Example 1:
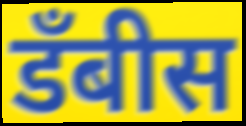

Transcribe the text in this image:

डॅंबीस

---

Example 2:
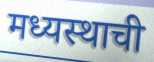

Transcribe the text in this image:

मध्यस्थाची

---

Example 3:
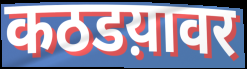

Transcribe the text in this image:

कठडय़ावर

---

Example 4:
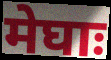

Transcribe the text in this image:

मेघाः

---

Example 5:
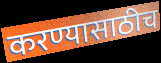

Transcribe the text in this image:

करण्यासाठीच